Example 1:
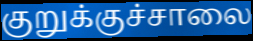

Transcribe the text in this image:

குறுக்குச்சாலை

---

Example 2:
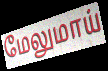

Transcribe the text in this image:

மேலுமாய்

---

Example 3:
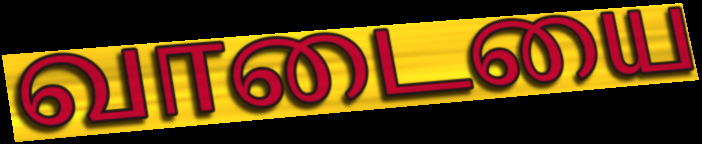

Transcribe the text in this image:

வாடையை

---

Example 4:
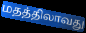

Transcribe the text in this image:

மதத்திலாவது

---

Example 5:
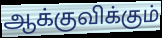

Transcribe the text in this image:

ஆக்குவிக்கும்